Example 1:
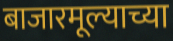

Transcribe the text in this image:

बाजारमूल्याच्या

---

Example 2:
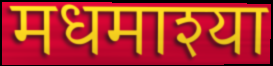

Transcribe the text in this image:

मधमाश्या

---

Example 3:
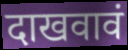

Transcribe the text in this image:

दाखवावं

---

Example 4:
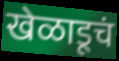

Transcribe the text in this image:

खेळाडूचं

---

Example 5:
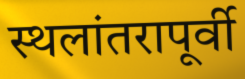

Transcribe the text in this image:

स्थलांतरापूर्वी